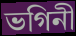
ভগিনী